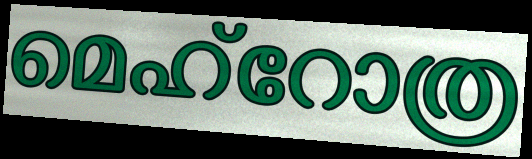
മെഹ്റോത്ര